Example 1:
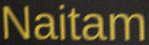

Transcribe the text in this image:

Naitam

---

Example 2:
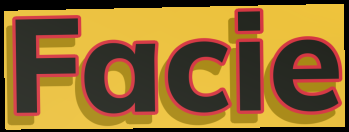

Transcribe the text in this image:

Facie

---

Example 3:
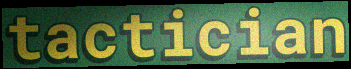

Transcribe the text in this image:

tactician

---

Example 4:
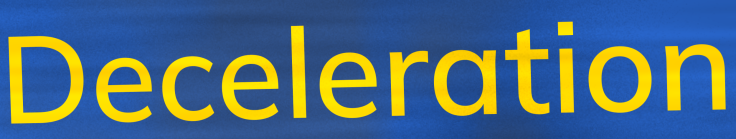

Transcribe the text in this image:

Deceleration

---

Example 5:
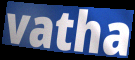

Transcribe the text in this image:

vatha